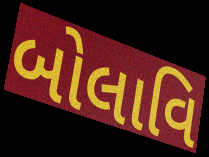
બોલાવિ